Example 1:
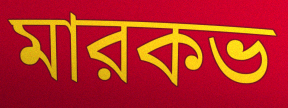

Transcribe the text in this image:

মারকভ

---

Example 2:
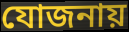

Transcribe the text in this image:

যোজনায়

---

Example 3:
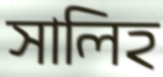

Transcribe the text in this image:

সালিহ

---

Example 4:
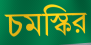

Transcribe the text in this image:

চমস্কির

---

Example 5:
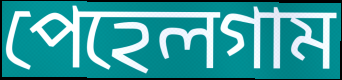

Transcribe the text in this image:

পেহেলগাম